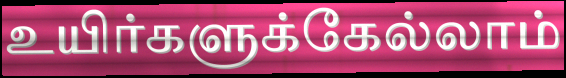
உயிர்களுக்கேல்லாம்